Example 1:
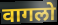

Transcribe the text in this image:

वागलो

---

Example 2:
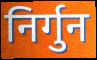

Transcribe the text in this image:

निर्गुन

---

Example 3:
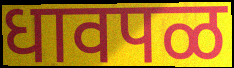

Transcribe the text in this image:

धावपळ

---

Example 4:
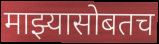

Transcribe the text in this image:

माझ्यासोबतच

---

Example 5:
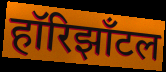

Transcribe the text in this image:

हॉरिझाँटल